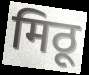
मिठू